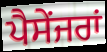
ਪੈਸੇਂਜਰਾਂ